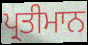
ਪ੍ਰਤੀਮਾਨ